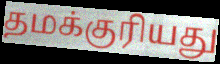
தமக்குரியது